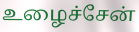
உழைச்சேன்